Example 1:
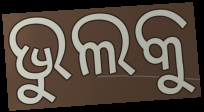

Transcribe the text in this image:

ଭୁଲକୁ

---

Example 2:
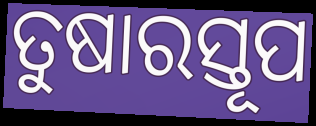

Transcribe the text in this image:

ତୁଷାରସ୍ତୂପ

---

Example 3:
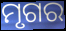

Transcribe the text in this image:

ମୃଗର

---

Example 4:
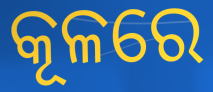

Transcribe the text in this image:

କୂଳରେ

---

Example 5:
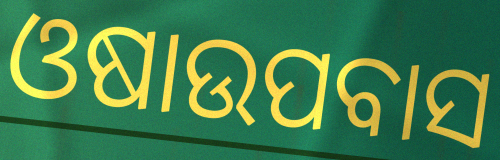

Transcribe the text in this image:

ଓଷାଉପବାସ